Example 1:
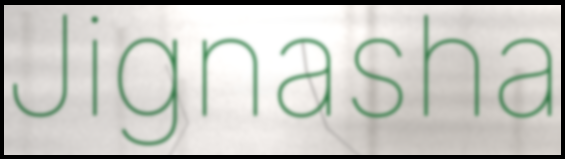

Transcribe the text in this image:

Jignasha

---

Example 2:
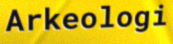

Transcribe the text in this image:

Arkeologi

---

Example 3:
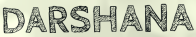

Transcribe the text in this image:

DARSHANA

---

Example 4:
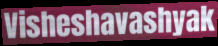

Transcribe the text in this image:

Visheshavashyak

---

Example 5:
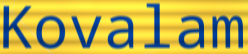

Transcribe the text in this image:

Kovalam